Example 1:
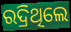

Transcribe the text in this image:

ରଦ୍ରିଥିଲେ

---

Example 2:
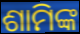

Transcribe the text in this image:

ଶାମିଙ୍କ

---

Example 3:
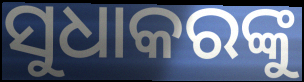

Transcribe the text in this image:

ସୁଧାକରଙ୍କୁ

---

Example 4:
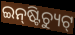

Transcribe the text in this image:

ଇନ୍‌ଷ୍ଟିଚ୍ୟୁଟ୍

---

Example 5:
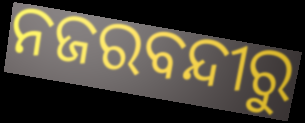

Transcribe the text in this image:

ନଜରବନ୍ଦୀରୁ